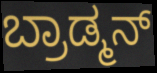
ಬ್ರಾಡ್ಮನ್